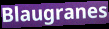
Blaugranes